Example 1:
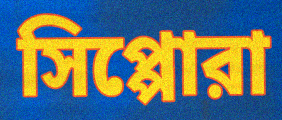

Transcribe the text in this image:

সিপ্পোরা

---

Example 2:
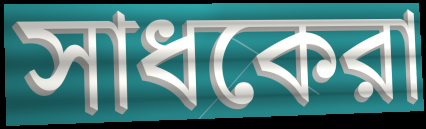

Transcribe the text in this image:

সাধকেরা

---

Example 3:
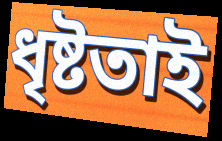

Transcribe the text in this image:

ধৃষ্টতাই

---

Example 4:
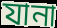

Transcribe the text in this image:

যানা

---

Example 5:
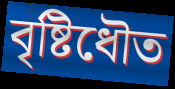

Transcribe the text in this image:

বৃষ্টিধৌত